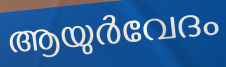
ആയുർവേദം